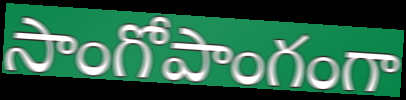
సాంగోపాంగంగా